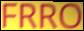
FRRO